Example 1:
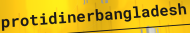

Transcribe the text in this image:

protidinerbangladesh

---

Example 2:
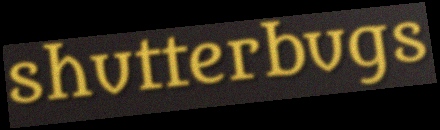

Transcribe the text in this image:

shutterbugs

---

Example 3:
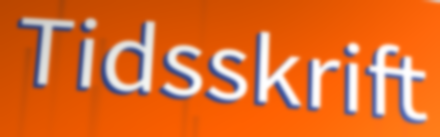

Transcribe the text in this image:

Tidsskrift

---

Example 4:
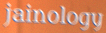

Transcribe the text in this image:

jainology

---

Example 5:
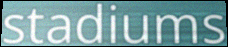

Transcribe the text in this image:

stadiums